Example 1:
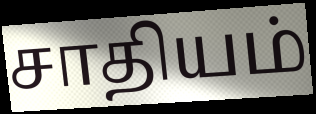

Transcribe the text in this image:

சாதியம்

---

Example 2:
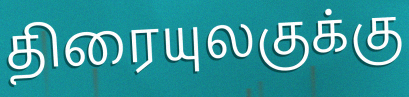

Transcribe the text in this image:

திரையுலகுக்கு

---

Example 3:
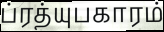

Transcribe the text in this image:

ப்ரத்யுபகாரம்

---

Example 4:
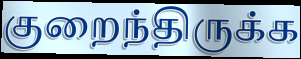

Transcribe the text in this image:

குறைந்திருக்க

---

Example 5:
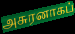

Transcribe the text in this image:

அசுரனாகப்